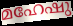
മഹേഷു